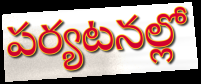
పర్యటనల్లో